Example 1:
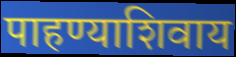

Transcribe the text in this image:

पाहण्याशिवाय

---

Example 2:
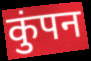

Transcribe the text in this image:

कुंपन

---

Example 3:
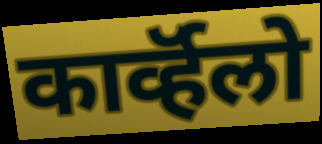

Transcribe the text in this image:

कार्व्हॅलो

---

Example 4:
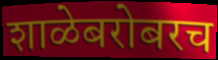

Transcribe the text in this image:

शाळेबरोबरच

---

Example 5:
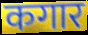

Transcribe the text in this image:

कगार